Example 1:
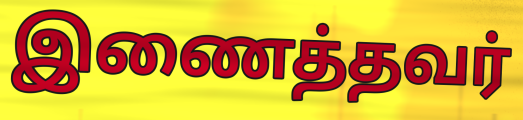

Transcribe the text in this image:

இணைத்தவர்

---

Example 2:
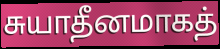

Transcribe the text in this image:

சுயாதீனமாகத்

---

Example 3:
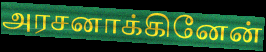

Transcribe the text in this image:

அரசனாக்கினேன்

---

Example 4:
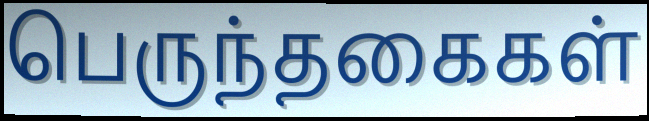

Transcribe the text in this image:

பெருந்தகைகள்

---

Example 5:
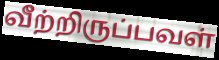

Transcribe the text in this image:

வீற்றிருப்பவள்